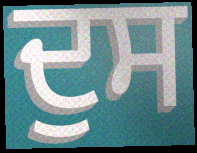
ਦੁਸ